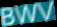
BWV